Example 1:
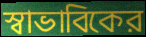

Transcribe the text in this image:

স্বাভাবিকের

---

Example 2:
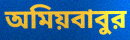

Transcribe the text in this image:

অমিয়বাবুর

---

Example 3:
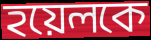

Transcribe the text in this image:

হয়েলকে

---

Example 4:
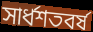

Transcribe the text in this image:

সার্ধশতবর্ষ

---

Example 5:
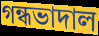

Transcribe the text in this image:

গন্ধভাদাল